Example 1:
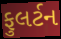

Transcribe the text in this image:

ફુલર્ટન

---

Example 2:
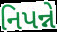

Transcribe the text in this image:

નિપન્ને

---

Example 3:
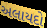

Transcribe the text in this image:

અલાયદો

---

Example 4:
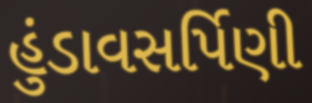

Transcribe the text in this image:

હુંડાવસર્પિણી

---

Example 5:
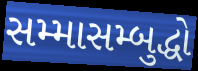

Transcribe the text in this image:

સમ્માસમ્બુદ્ધો